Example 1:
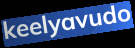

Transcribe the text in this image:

keelyavudo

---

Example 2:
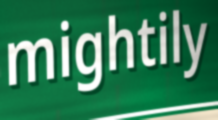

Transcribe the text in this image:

mightily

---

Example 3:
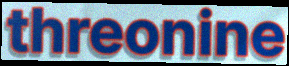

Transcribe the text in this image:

threonine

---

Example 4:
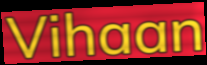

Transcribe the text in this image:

Vihaan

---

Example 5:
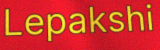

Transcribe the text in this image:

Lepakshi